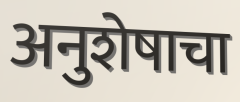
अनुशेषाचा